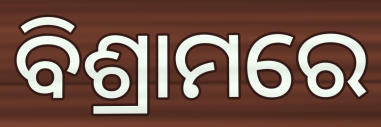
ବିଶ୍ରାମରେ